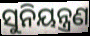
ସୁନିୟନ୍ତ୍ରଣ